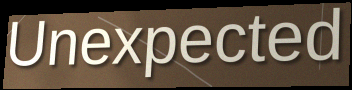
Unexpected